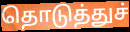
தொடுத்துச்